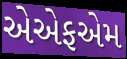
એએફએમ